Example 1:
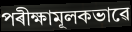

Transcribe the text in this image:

পৰীক্ষামূলকভাৱে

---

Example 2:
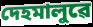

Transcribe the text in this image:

দেহমালুৱে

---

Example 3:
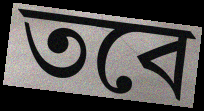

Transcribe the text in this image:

তবে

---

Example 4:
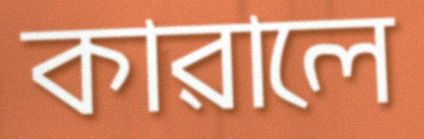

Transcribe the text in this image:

কাৱালে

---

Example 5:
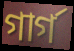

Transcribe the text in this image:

গাৰ্গ